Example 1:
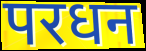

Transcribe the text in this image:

परधन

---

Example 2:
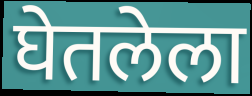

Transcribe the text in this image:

घेतलेला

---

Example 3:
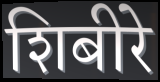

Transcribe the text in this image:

शिबीरे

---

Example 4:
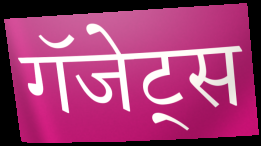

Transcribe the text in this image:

गॅजेट्स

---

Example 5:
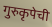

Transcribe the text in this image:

गुरुकृपेची